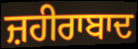
ਜ਼ਹੀਰਾਬਾਦ